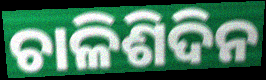
ଚାଳିଶିଦିନ